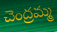
చెంద్రమ్మ